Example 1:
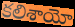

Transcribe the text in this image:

కలిశాయో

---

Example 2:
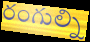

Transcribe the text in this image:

రంగుల్ని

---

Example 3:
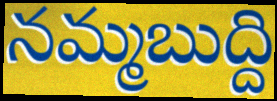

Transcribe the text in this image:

నమ్మబుద్ది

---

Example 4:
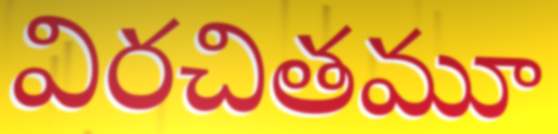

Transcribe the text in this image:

విరచితమూ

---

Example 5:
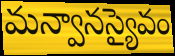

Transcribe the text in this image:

మన్వానస్యైవం